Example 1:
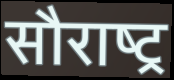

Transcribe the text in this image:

सौराष्ट्र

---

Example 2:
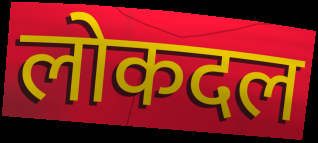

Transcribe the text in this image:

लोकदल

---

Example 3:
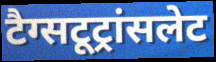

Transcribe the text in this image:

टैग्सटूट्रांसलेट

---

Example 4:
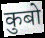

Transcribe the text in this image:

कुबो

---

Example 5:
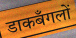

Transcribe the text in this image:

डाकबँगलों